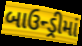
બાઉન્ડ્રીમાં